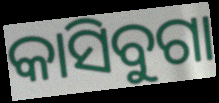
କାସିବୁଗା